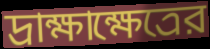
দ্রাক্ষাক্ষেত্রের